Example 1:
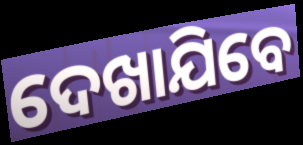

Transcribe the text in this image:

ଦେଖାଯିବେ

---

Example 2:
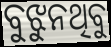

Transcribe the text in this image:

ବୁଝୁନଥିବୁ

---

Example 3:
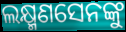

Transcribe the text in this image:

ଲକ୍ଷ୍ମଣସେନଙ୍କୁ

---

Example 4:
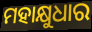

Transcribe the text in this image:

ମହାକ୍ଷୁଧାର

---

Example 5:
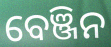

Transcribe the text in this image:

ବେଞ୍ଜିନ